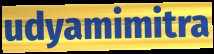
udyamimitra